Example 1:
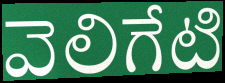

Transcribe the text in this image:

వెలిగేటి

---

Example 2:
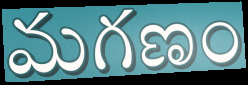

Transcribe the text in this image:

మగణం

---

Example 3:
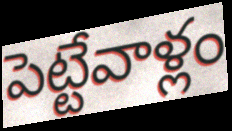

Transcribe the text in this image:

పెట్టేవాళ్లం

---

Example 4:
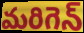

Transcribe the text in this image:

మరిగెన్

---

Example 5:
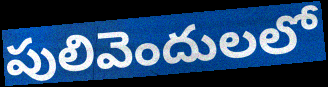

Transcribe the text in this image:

పులివెందులలో